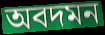
অবদমন